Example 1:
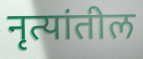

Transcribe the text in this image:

नृत्यांतील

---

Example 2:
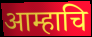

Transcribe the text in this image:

आम्हाचि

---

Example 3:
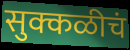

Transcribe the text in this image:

सुक्कळीचं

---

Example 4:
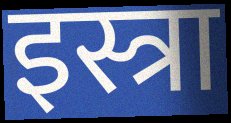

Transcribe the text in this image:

इस्त्रा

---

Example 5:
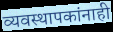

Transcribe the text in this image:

व्यवस्थापकांनाही